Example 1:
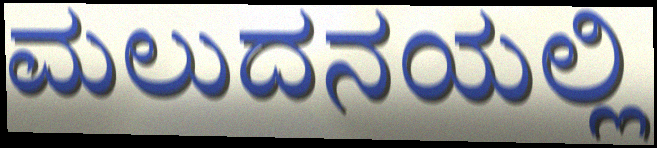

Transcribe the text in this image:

ಮಲುದನಯಲ್ಲಿ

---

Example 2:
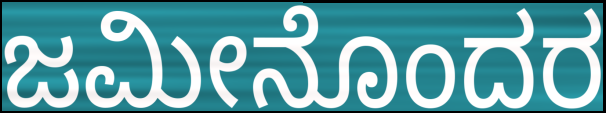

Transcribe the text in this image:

ಜಮೀನೊಂದರ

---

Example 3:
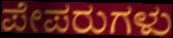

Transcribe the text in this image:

ಪೇಪರುಗಳು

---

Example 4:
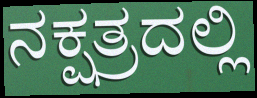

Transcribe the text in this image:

ನಕ್ಷತ್ರದಲ್ಲಿ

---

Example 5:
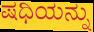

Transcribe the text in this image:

ಷಧಿಯನ್ನು